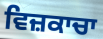
ਵਿਜ਼ਕਾਚਾ